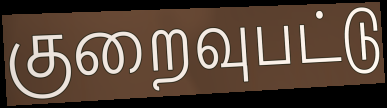
குறைவுபட்டு